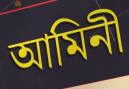
আমিনী